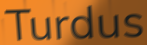
Turdus